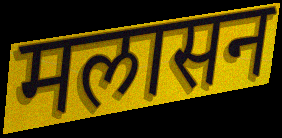
मलासन